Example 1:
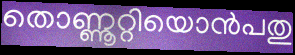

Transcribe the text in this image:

തൊണ്ണൂറ്റിയൊൻപതു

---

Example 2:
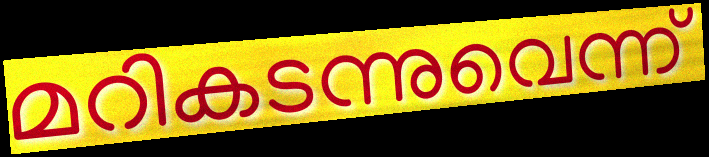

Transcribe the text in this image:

മറികടന്നുവെന്ന്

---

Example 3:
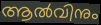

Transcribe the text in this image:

ആൽവിനും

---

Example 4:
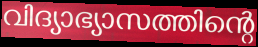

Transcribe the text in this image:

വിദ്യാഭ്യാസത്തിന്റെ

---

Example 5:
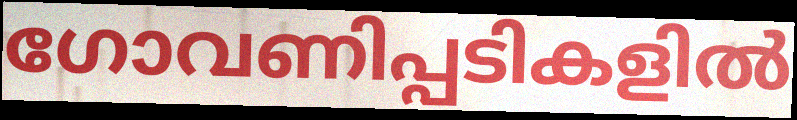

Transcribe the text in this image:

ഗോവണിപ്പടികളിൽ